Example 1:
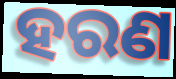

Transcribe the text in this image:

ହରଣ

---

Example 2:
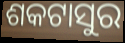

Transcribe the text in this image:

ଶକଟାସୁର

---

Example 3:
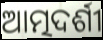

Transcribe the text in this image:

ଆତ୍ମଦର୍ଶୀ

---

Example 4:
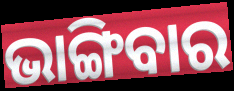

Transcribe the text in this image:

ଭାଙ୍ଗିବାର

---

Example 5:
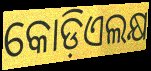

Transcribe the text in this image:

କୋଡ଼ିଏଲକ୍ଷ